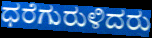
ಧರೆಗುರುಳಿದರು